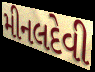
મીનલદેવી